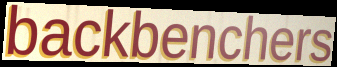
backbenchers